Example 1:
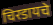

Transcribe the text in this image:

चिरडायचे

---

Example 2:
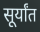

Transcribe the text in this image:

सूर्यांत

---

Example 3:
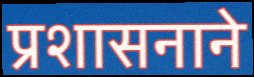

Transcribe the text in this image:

प्रशासनाने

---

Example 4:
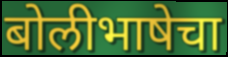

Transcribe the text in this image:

बोलीभाषेचा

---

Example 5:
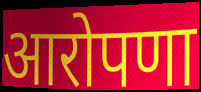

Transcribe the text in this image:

आरोपणा